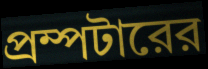
প্রম্পটারের